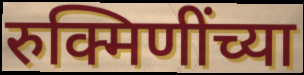
रुक्मिणींच्या